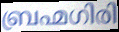
ബ്രഹ്മഗിരി